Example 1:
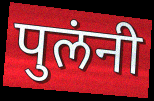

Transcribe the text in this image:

पुलंनी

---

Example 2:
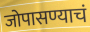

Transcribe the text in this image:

जोपासण्याचं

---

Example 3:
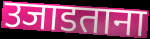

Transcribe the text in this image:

उजाडताना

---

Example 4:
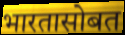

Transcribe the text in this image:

भारतासोबत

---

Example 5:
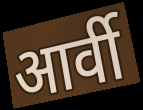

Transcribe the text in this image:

आर्वी